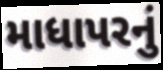
માધાપરનું